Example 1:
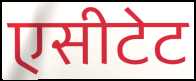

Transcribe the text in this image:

एसीटेट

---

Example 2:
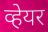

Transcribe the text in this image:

व्हेयर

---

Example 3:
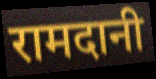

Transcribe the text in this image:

रामदानी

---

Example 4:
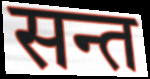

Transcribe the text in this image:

सन्‍त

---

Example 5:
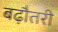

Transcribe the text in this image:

बढ़ौतरी